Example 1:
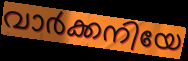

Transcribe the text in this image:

വാർക്കനിയേ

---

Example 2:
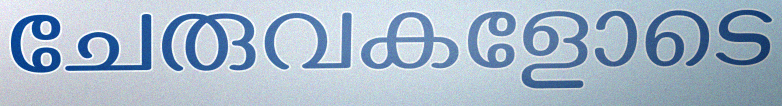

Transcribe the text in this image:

ചേരുവകളോടെ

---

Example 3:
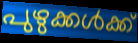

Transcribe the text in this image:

പുഴുക്കൾക്ക്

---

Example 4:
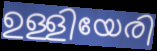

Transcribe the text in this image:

ഉള്ളിയേരി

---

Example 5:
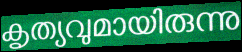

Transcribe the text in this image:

കൃത്യവുമായിരുന്നു